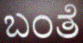
ಬಂತೆ